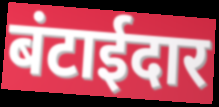
बंटाईदार